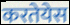
करतेयेस